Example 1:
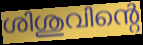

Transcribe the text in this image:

ശിശുവിന്റെ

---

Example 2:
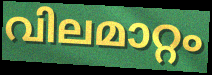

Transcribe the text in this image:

വിലമാറ്റം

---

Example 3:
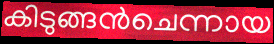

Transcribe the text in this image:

കിടുങ്ങൻചെന്നായ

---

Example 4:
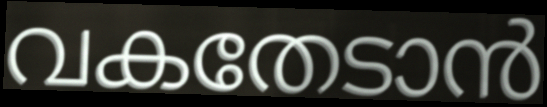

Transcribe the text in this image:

വകതേടാൻ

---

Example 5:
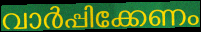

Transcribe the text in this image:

വാർപ്പിക്കേണം